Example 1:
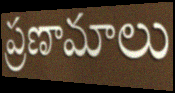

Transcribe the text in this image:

ప్రణామాలు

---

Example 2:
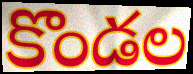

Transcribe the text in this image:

కొండల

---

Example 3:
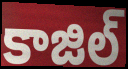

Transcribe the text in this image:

కాజిల్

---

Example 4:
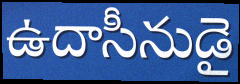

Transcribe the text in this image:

ఉదాసీనుడై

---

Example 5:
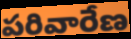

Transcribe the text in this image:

పరివారేణ